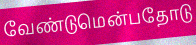
வேண்டுமென்பதோடு